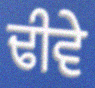
ਢੀਵੇ